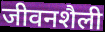
जीवनशैली